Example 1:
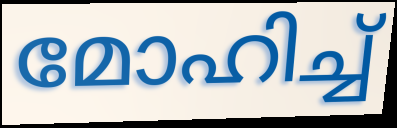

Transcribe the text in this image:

മോഹിച്ച്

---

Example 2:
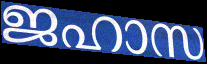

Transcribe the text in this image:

ജഹാസ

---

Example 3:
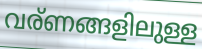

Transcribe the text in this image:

വര്ണങ്ങളിലുള്ള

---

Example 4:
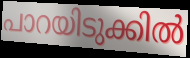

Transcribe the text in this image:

പാറയിടുക്കിൽ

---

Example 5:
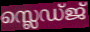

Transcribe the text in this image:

സ്ലെഡ്ജ്